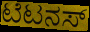
ಟೆಟನಸ್